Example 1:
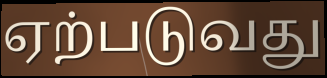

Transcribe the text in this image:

ஏற்படுவது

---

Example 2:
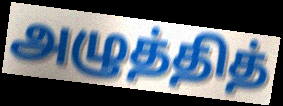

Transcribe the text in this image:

அழுத்தித்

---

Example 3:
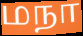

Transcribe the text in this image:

மநா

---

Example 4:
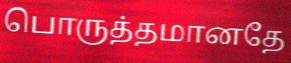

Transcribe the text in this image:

பொருத்தமானதே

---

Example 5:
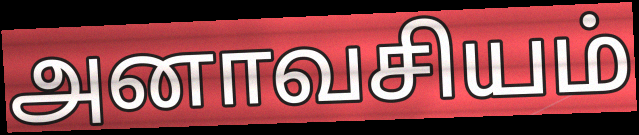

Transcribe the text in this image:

அனாவசியம்